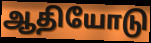
ஆதியோடு